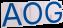
AOG